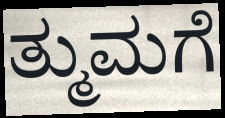
ತ್ಮುಮಗೆ